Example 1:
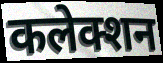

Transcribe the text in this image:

कलेक्शन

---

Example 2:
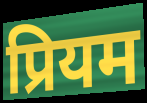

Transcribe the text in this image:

प्रियम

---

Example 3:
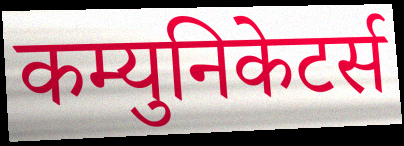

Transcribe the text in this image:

कम्युनिकेटर्स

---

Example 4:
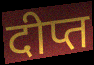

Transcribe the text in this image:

दीप्त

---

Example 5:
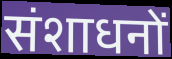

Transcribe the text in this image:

संशाधनों